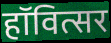
हॉवित्सर